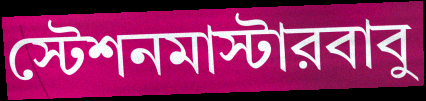
স্টেশনমাস্টারবাবু